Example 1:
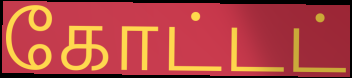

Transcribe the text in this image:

கோட்டட்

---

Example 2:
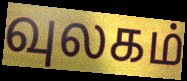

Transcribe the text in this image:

வுலகம்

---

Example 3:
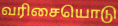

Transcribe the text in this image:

வரிசையொடு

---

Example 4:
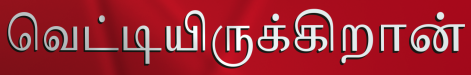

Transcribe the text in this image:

வெட்டியிருக்கிறான்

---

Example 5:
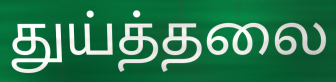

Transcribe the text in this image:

துய்த்தலை